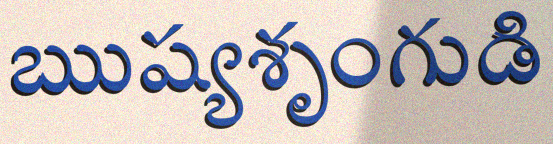
ఋష్యశృంగుడి